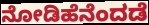
ನೋಡಿಹೆನೆಂದಡೆ